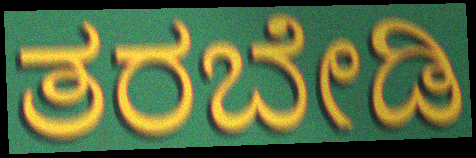
ತರಬೇಡಿ